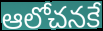
ఆలోచనకే